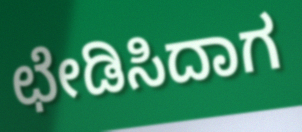
ಛೇಡಿಸಿದಾಗ